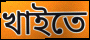
খাইতে